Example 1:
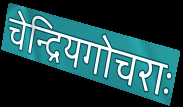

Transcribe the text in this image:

चेन्द्रियगोचराः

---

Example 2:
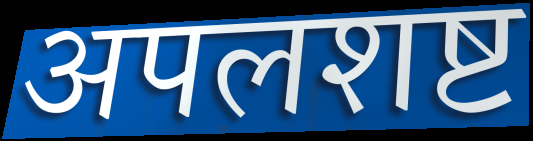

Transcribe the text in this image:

अपलशष्ट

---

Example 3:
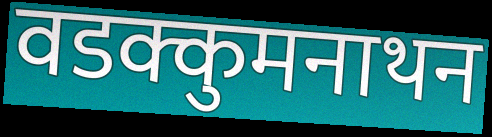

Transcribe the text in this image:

वडक्कुमनाथन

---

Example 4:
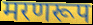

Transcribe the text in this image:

मरणरूप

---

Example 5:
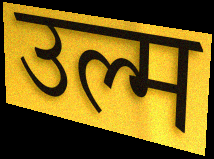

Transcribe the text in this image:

उल्म